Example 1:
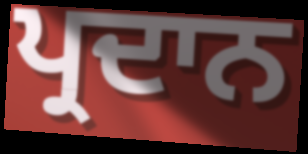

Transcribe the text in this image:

ਪ੍ਰਦਾਨ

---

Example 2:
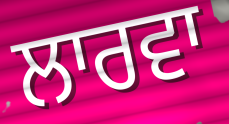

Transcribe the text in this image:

ਲਾਰਵਾ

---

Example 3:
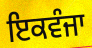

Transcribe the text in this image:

ਇਕਵੰਜਾ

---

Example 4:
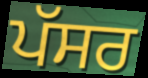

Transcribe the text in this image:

ਪੱਸਰ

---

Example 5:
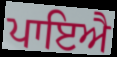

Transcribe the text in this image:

ਪਾਇਐ